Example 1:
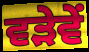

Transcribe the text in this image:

ਵੜੇਵੇਂ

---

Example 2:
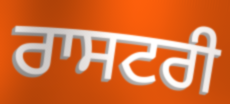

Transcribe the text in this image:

ਰਾਸਟਰੀ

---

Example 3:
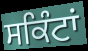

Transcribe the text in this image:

ਸਕਿੰਟਾਂ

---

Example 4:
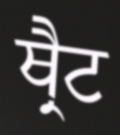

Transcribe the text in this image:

ਥ੍ਰੈਟ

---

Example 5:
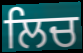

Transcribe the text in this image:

ਲਿਚ